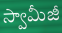
స్వామీజీ